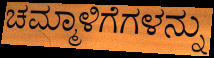
ಚಮ್ಮಾಳಿಗೆಗಳನ್ನು